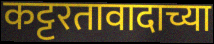
कट्टरतावादाच्या